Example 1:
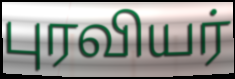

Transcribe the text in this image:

புரவியர்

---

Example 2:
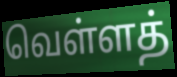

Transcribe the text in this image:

வெள்ளத்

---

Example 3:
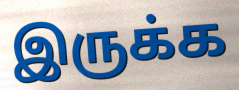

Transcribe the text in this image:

இருக்க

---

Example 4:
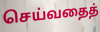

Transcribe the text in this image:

செய்வதைத்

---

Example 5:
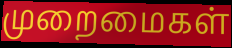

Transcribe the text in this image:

முறைமைகள்